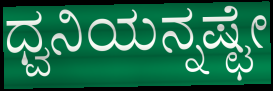
ಧ್ವನಿಯನ್ನಷ್ಟೇ